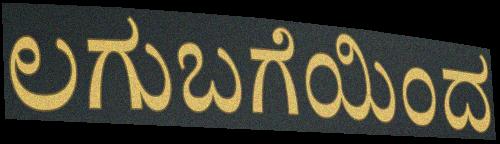
ಲಗುಬಗೆಯಿಂದ